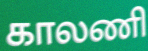
காலணி